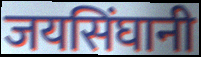
जयसिंघानी